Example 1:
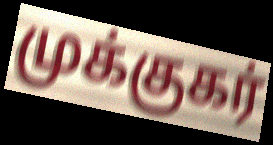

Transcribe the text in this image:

முக்குகர்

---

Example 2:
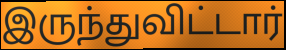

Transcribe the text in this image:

இருந்துவிட்டார்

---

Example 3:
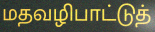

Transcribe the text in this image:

மதவழிபாட்டுத்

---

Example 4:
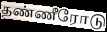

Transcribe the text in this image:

தண்ணீரோடு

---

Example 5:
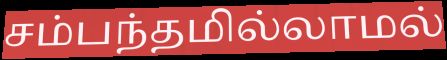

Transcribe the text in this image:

சம்பந்தமில்லாமல்